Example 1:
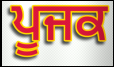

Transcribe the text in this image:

ਪੂਜਕ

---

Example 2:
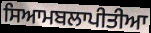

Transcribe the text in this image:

ਸਿਆਮਬਲਾਪੀਤੀਆ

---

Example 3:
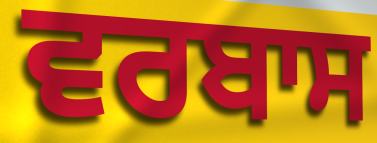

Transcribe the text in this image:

ਵਰਬਾਸ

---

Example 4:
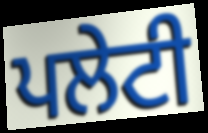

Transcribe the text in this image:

ਪਲੇਟੀ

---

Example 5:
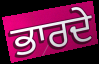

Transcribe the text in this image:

ਭਾਰਦੇ